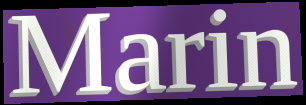
Marin